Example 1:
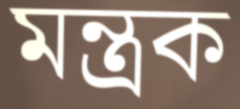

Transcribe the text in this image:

মন্ত্রক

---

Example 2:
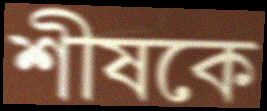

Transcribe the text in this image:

শীষকে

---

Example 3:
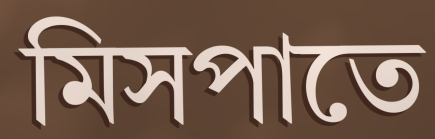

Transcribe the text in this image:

মিসপাতে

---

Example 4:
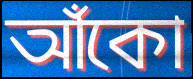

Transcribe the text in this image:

আঁকো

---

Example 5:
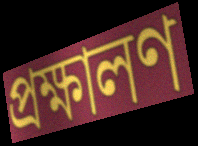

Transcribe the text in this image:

প্রক্ষালণ